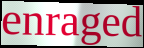
enraged